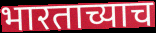
भारताच्याच